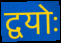
द्वयोः